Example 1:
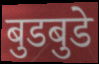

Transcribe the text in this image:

बुडबुडे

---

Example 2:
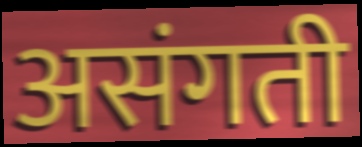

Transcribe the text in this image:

असंगती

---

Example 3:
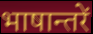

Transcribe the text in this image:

भाषान्तरें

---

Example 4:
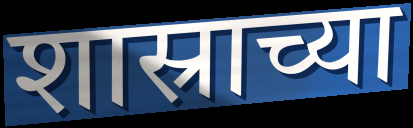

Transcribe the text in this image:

शास्राच्या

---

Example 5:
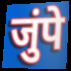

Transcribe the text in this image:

जुंपे